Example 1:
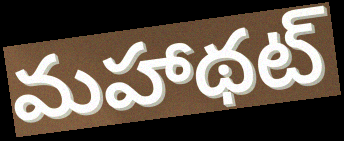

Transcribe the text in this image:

మహాథట్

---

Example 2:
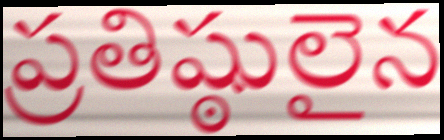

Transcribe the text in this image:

ప్రతిష్ఠులైన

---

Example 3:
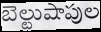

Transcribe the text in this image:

బెల్టుషాపుల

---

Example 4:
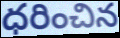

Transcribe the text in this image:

ధరించిన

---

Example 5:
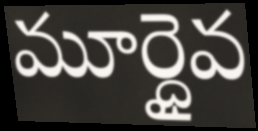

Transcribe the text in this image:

మూర్ధైవ